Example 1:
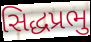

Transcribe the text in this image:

સિદ્ધપ્રભુ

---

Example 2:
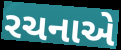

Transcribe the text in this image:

રચનાએ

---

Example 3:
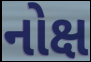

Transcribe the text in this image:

નોક્ષ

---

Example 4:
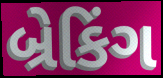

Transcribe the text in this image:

બ્રેકિંગ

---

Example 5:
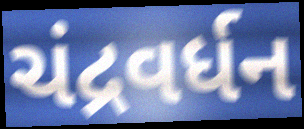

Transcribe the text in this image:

ચંદ્રવર્ધન